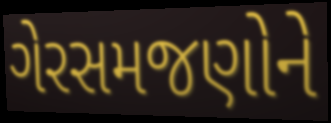
ગેરસમજણોને